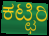
ಕಟ್ಟಿರಿ